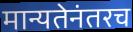
मान्यतेनंतरच